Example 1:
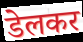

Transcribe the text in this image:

डेलकर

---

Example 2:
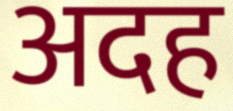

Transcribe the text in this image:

अदह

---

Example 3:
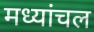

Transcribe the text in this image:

मध्यांचल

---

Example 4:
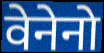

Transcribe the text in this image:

वेनेनो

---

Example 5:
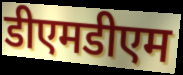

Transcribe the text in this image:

डीएमडीएम